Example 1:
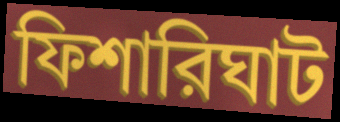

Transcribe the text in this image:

ফিশারিঘাট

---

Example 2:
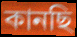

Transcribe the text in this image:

কানছি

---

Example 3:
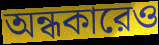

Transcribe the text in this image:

অন্ধকারেও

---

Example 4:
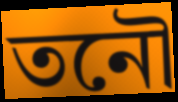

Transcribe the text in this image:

তনৌ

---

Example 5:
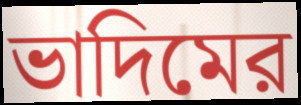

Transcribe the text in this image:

ভাদিমের